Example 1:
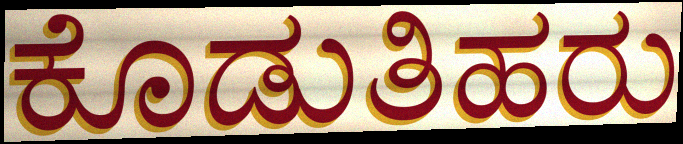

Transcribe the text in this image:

ಕೊಡುತಿಹರು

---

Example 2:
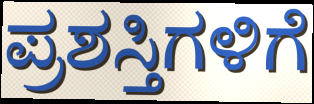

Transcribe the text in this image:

ಪ್ರಶಸ್ತಿಗಳಿಗೆ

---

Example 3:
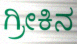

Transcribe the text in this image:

ಗ್ರೀಕಿನ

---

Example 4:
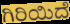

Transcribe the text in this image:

ಗಿರಿಯಿದೆ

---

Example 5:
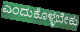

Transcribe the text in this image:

ಎಂದುಕೊಳ್ಳಬೇಕು